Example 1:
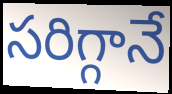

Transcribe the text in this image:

సరిగ్గానే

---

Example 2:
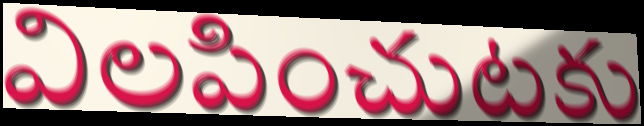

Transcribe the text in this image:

విలపించుటకు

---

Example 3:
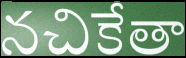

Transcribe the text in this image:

నచికేతా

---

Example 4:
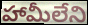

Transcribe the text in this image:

హామీలేని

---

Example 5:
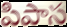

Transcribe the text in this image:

పిపాస